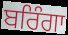
ਬਰਿੰਗਾ